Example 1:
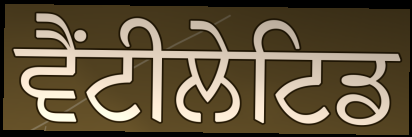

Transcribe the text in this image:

ਵੈਂਟੀਲੇਟਿਡ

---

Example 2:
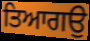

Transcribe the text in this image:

ਤਿਆਗਉ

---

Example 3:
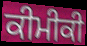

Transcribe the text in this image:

ਕੀਮੀਕੀ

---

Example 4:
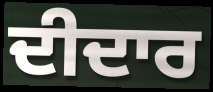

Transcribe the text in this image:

ਦੀਦਾਰ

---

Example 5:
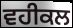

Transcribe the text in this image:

ਵਹੀਕਲ